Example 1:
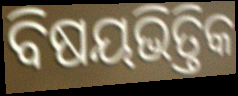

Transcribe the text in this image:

ବିଷୟଭିତ୍ତିକ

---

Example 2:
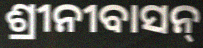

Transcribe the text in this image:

ଶ୍ରୀନୀବାସନ୍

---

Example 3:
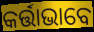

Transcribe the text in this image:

କର୍ତ୍ତାଭାବେ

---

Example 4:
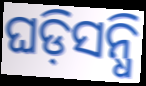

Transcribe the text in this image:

ଘଡ଼ିସନ୍ଧି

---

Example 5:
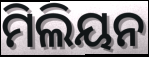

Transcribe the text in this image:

ମିଲିୟନ